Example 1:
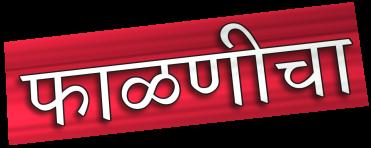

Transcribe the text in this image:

फाळणीचा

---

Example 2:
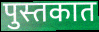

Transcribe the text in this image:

पुस्तकात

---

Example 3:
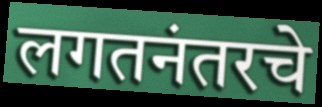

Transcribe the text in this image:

लगतनंतरचे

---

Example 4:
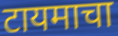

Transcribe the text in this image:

टायमाचा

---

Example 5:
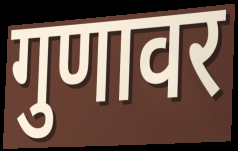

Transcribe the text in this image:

गुणावर